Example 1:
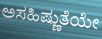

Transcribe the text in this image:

ಅಸಹಿಷ್ಣುತೆಯೇ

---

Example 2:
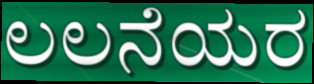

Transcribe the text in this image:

ಲಲನೆಯರ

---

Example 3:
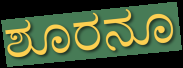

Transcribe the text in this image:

ಶೂರನೂ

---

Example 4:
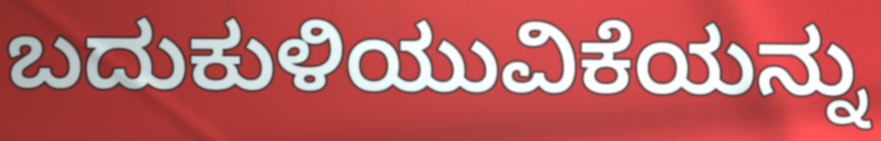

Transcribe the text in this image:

ಬದುಕುಳಿಯುವಿಕೆಯನ್ನು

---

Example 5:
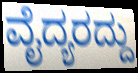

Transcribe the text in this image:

ವೈದ್ಯರದ್ದು